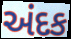
અંદક